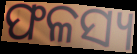
ଫଳସ୍ୟ